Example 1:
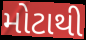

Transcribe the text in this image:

મોટાથી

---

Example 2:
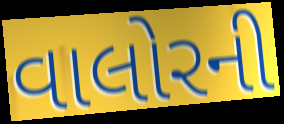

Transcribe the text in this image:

વાલોરની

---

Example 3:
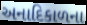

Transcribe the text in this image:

અનાદિકાળના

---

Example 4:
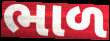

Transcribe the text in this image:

ભાળ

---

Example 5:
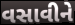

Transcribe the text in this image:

વસાવીને